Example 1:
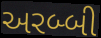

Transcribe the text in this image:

અરબ્બી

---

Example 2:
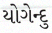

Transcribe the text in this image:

યોગેન્દુ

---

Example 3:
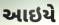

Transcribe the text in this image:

આઇયે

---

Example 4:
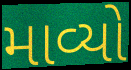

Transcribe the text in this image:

માવ્યો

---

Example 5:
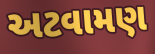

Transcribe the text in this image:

અટવામણ